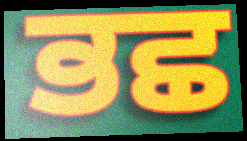
ਭਛ